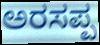
ಅರಸಪ್ಪ